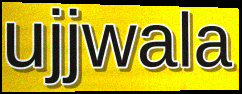
ujjwala